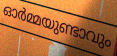
ഓർമ്മയുണ്ടാവും